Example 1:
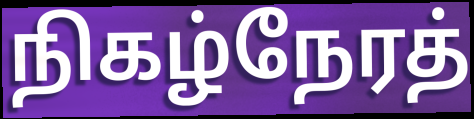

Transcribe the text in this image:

நிகழ்நேரத்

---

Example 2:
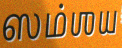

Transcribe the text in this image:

ஸம்ஶய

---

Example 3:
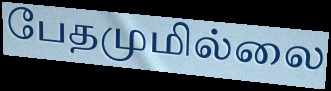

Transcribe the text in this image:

பேதமுமில்லை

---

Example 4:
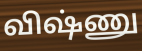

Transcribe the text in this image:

விஷ்ணு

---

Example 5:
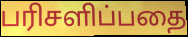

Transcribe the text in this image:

பரிசளிப்பதை